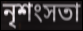
নৃশংসতা